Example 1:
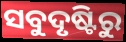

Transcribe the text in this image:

ସବୁଦୃଷ୍ଟିରୁ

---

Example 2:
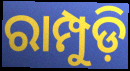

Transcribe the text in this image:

ରାମ୍ପୁଡ଼ି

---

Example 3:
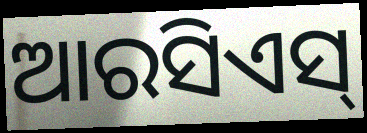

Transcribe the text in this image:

ଆରସିଏସ୍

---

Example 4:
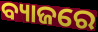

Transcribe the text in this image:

ବ୍ୟାଜରେ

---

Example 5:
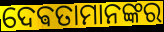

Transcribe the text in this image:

ଦେଵତାମାନଙ୍କର